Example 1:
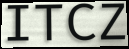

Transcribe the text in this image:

ITCZ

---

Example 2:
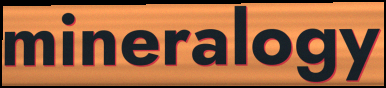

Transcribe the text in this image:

mineralogy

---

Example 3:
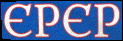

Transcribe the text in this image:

EPEP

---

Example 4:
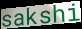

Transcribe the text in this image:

sakshi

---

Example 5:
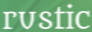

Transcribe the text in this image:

rustic